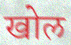
खोल